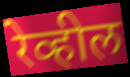
रेव्हील